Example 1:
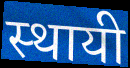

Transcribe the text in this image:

स्थायी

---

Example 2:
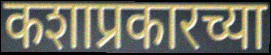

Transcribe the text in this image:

कशाप्रकारच्या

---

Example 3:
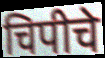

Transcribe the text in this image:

चिपीचे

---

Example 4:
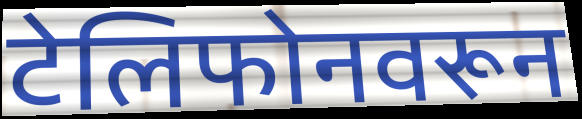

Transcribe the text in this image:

टेलिफोनवरून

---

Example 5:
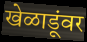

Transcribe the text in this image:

खेळाडूंवर